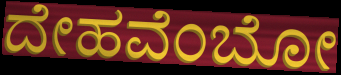
ದೇಹವೆಂಬೋ